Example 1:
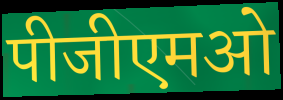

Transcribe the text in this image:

पीजीएमओ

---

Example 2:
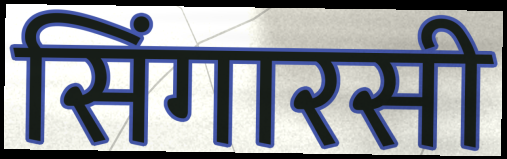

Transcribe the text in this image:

सिंगारसी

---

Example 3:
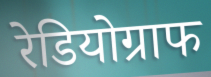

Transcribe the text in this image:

रेडियोग्राफ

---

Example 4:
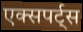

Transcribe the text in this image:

एक्‍सपर्ट्स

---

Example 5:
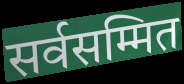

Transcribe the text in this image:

सर्वसम्मित